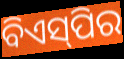
ବିଏସ୍‌ପିର